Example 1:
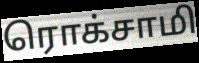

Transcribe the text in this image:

ரொக்சாமி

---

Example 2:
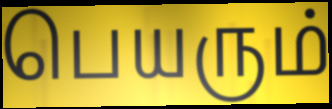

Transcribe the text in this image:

பெயரும்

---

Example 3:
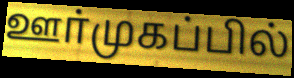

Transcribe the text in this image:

ஊர்முகப்பில்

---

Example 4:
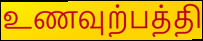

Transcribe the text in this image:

உணவுற்பத்தி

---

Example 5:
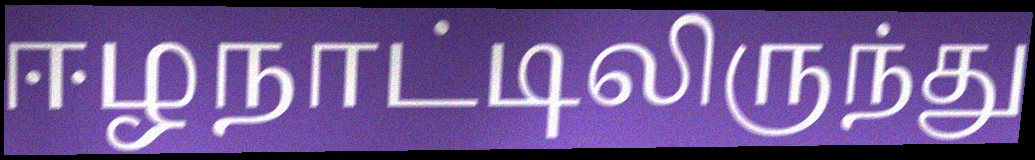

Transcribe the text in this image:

ஈழநாட்டிலிருந்து